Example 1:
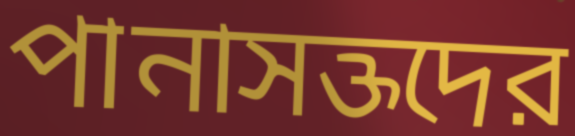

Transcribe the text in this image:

পানাসক্তদের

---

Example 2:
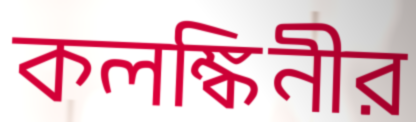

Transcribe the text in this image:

কলঙ্কিনীর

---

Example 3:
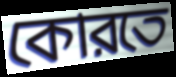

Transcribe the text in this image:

কোরতে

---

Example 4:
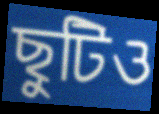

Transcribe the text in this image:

ছুটিও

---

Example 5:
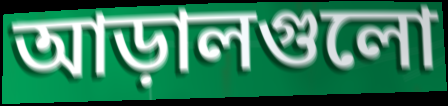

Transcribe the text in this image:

আড়ালগুলো